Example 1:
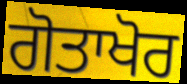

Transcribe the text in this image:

ਗੋਤਾਖੋਰ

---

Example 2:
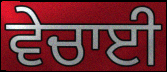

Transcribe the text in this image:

ਵੇਚਾਈ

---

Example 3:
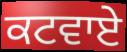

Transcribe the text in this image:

ਕਟਵਾਏ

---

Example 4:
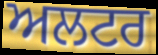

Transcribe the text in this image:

ਅਲਟਰ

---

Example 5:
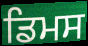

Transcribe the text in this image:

ਡਿਮਸ